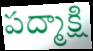
పద్మాక్షి